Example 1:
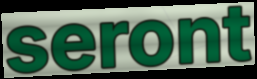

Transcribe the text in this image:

seront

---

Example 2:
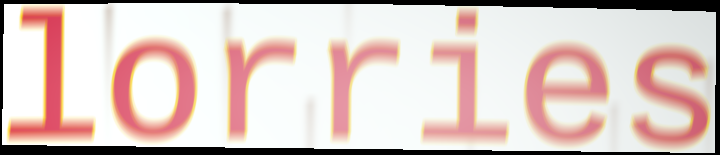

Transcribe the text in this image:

lorries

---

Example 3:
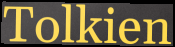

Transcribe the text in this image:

Tolkien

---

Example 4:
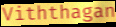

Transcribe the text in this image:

Viththagan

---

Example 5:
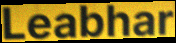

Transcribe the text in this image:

Leabhar